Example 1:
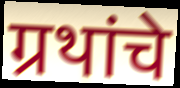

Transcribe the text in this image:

ग्रथांचे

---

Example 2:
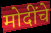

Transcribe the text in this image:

मोदींचे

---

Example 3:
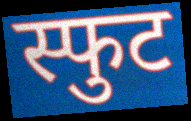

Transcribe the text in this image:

स्फुट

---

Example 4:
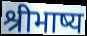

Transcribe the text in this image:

श्रीभाष्य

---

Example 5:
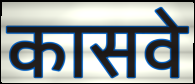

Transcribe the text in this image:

कासवे